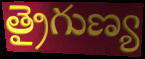
త్రైగుణ్య